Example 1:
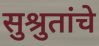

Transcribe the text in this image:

सुश्रुतांचे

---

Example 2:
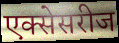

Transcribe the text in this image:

एक्सेसरीज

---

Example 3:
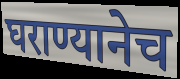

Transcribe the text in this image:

घराण्यानेच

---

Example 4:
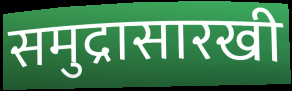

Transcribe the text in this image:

समुद्रासारखी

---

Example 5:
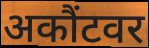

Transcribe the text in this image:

अकौंटवर